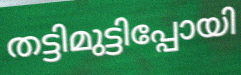
തട്ടിമുട്ടിപ്പോയി